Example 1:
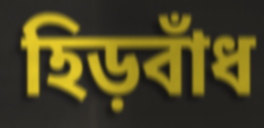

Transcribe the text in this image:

হিড়বাঁধ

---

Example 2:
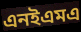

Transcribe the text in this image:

এনইএমএ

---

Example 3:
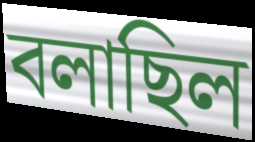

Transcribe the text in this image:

বলাছিল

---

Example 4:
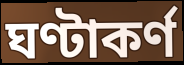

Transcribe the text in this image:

ঘণ্টাকর্ণ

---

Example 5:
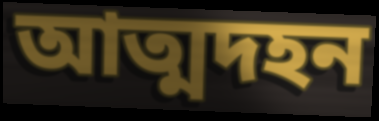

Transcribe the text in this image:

আত্মদহন